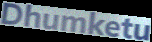
Dhumketu